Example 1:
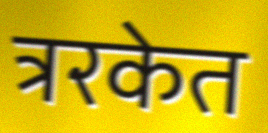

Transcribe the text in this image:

त्ररकेत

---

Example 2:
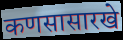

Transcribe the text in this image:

कणसासारखे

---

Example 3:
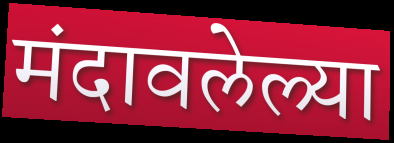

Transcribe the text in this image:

मंदावलेल्या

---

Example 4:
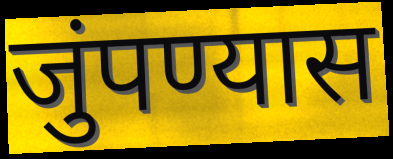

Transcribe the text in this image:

जुंपण्यास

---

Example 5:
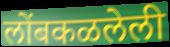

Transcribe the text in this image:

लोंबकळलेली